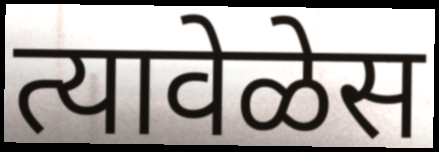
त्यावेळेस